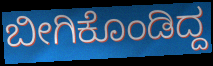
ಬೀಗಿಕೊಂಡಿದ್ದ